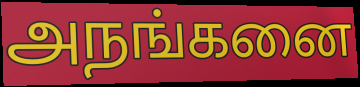
அநங்கனை